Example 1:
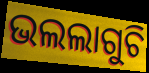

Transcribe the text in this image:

ଭଲଲାଗୁଚି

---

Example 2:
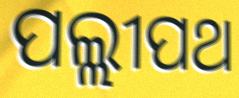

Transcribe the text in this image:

ପଲ୍ଲୀପଥ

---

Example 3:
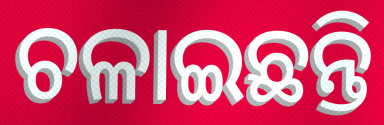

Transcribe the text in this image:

ଚଳାଇଛନ୍ତି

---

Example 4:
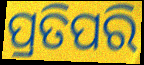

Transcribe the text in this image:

ପ୍ରତିପରି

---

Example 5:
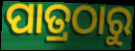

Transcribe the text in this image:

ପାତ୍ରଠାରୁ